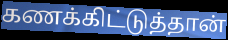
கணக்கிட்டுத்தான்